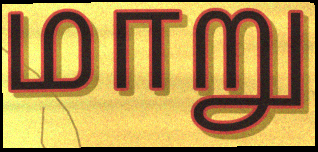
மாறு